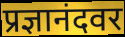
प्रज्ञानंदवर